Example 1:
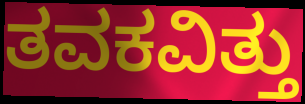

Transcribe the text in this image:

ತವಕವಿತ್ತು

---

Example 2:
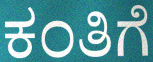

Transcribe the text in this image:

ಕಂತಿಗೆ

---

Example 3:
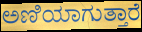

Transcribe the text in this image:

ಅಣಿಯಾಗುತ್ತಾರೆ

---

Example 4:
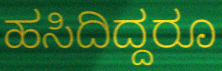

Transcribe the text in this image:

ಹಸಿದಿದ್ದರೂ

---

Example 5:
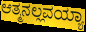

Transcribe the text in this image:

ಆತ್ಮನಲ್ಲವಯ್ಯಾ